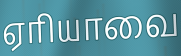
ஏரியாவை